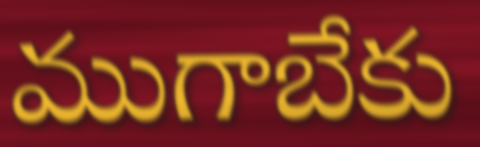
ముగాబేకు